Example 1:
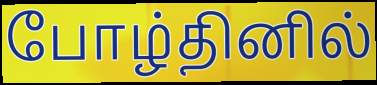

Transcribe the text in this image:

போழ்தினில்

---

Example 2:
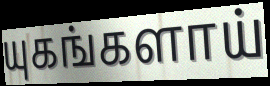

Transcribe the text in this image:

யுகங்களாய்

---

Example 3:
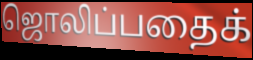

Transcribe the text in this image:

ஜொலிப்பதைக்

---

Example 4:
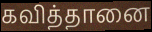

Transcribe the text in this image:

கவித்தானை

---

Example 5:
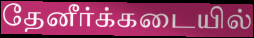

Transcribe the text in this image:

தேனீர்க்கடையில்